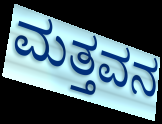
ಮತ್ತವನ